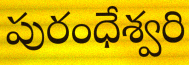
పురంధేశ్వరి